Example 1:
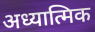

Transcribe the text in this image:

अध्यात्मिक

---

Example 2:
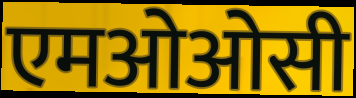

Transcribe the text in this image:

एमओओसी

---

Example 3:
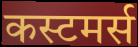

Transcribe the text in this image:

कस्‍टमर्स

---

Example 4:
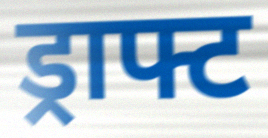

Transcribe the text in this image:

ड्राफ्ट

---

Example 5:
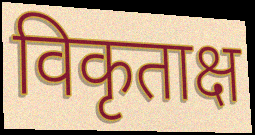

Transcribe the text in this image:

विकृताक्ष